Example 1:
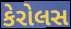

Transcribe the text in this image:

કેરોલસ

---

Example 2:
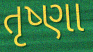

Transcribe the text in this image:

તૃષ્ણા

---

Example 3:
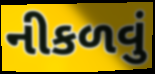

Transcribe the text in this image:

નીકળવું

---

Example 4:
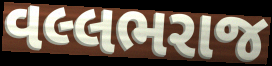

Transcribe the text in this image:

વલ્લભરાજ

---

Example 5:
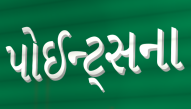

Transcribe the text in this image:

પોઈન્ટ્સના